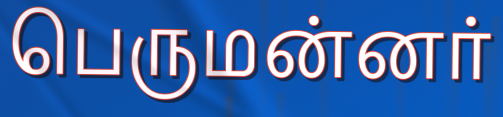
பெருமன்னர்